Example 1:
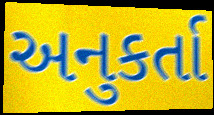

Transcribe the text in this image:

અનુકર્તા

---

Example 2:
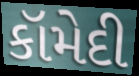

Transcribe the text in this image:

કૉમેદી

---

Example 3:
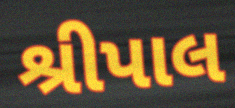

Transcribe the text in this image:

શ્રીપાલ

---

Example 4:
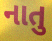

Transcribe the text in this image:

નાતુ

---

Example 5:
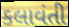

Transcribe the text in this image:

કલાવંતી